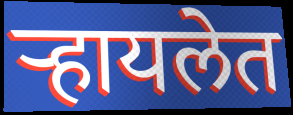
ऱ्हायलेत